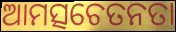
ଆମତ୍ସଚେତନତା